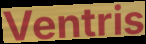
Ventris